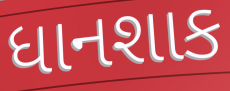
ધાનશાક